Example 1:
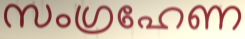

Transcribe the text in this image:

സംഗ്രഹേണ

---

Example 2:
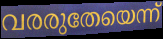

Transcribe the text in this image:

വരരുതേയെന്ന്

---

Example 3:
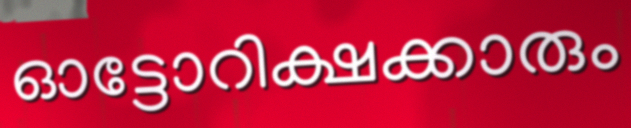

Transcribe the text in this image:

ഓട്ടോറിക്ഷക്കാരും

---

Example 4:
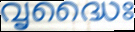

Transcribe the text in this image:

വൃദ്ധൈഃ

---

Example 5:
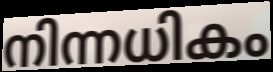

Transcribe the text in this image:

നിന്നധികം